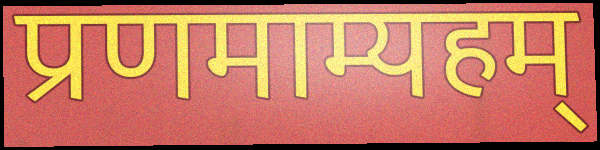
प्रणमाम्यहम्